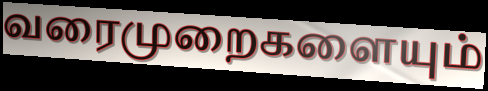
வரைமுறைகளையும்